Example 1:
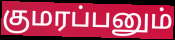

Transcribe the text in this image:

குமரப்பனும்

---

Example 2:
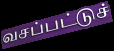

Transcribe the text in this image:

வசப்பட்டுச்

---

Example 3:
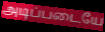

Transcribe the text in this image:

அடிப்படையே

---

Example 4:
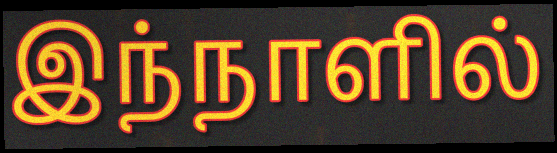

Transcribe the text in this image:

இந்நாளில்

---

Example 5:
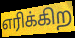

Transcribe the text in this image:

எரிக்கிற